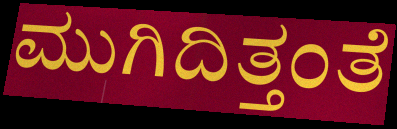
ಮುಗಿದಿತ್ತಂತೆ